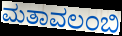
ಮತಾವಲಂಬಿ